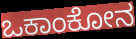
ಒಕಾಂಕೋನ